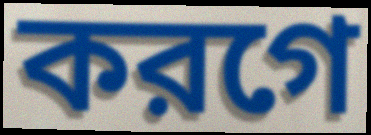
করগে